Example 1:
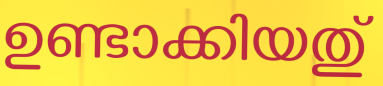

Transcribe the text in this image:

ഉണ്ടാക്കിയതു്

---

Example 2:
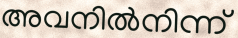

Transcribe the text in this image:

അവനിൽനിന്ന്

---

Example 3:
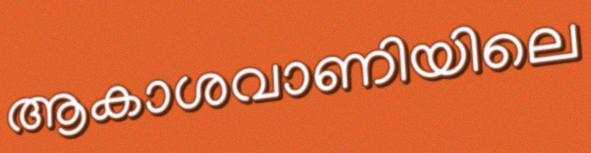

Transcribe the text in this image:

ആകാശവാണിയിലെ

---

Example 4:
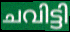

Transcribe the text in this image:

ചവിട്ടി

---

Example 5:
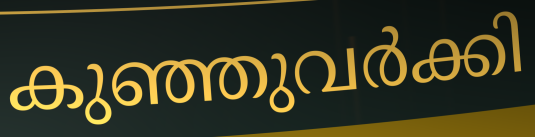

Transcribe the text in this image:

കുഞ്ഞുവർക്കി